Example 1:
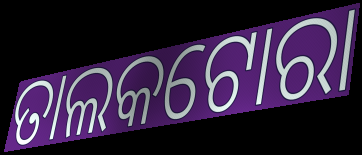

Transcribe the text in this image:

ତାଲକଟୋରା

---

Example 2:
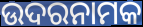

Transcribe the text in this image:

ଉଦରନାମକ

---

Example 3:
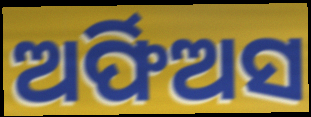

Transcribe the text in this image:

ଅର୍ଫିଅସ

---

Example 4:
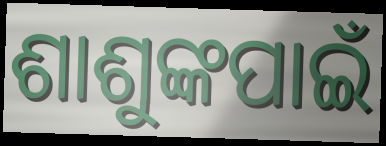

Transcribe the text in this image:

ଶାଶୁଙ୍କପାଇଁ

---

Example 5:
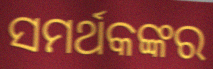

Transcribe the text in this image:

ସମର୍ଥକଙ୍କର